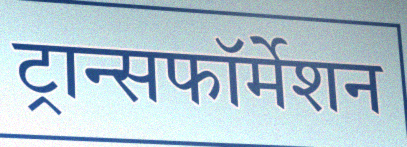
ट्रान्सफॉर्मेशन